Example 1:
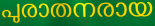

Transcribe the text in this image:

പുരാതനരായ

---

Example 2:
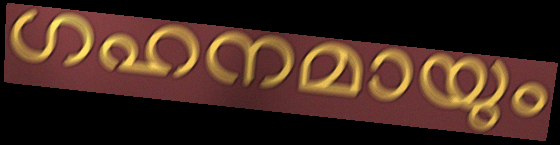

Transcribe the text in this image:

ഗഹനമായും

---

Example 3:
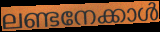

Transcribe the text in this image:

ലണ്ടനേക്കാൾ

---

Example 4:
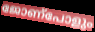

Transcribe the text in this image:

ജോണ്പോളും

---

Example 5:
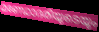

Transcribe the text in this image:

മണ്ഡോദരിയുടെയും